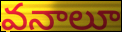
వనాలూ